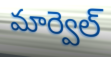
మార్వెల్